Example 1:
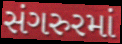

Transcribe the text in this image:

સંગરુરમાં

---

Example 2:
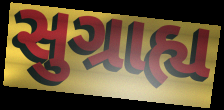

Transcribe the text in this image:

સુગ્રાહ્ય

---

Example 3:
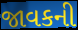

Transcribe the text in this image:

જાવકની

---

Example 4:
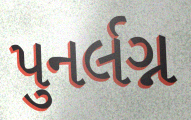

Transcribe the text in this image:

પુનર્લગ્ન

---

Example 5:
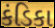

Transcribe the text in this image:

કંડિકા